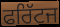
ਫਰਿੱਟਜ